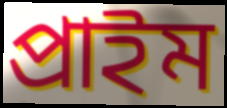
প্রাইম